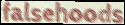
falsehoods